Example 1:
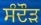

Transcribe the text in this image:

ਸੰਦੌੜ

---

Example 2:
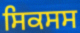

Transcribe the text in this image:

ਸਿਕਸਸ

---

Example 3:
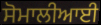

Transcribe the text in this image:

ਸੋਮਾਲੀਆਈ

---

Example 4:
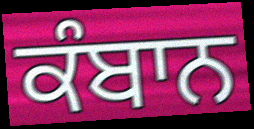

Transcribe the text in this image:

ਕੰਬਾਨ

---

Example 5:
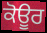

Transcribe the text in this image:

ਕੋਊਰ